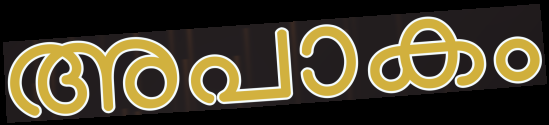
അപാകം